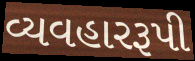
વ્યવહારરૂપી